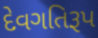
દેવગતિરૂપ